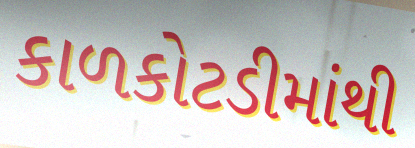
કાળકોટડીમાંથી